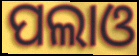
ପଲାଓ